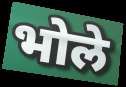
भोले